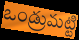
ఒండ్రుమట్టి